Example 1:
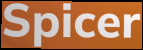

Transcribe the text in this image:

Spicer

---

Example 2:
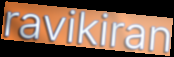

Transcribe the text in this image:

ravikiran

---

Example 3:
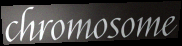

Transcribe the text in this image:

chromosome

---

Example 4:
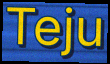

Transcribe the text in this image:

Teju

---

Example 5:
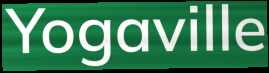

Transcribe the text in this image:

Yogaville